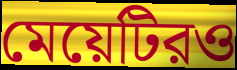
মেয়েটিরও